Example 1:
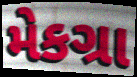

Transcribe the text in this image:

મેકગ્રા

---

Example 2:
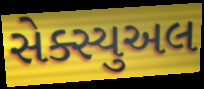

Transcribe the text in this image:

સેક્સ્યુઅલ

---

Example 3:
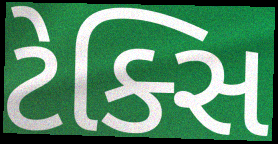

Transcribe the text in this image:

ટેક્સિ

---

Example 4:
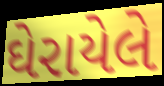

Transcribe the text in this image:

ઘેરાયેલે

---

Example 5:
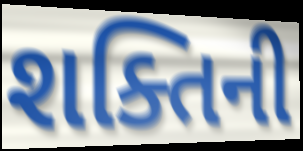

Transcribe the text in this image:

શક્તિની